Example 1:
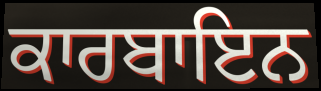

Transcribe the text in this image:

ਕਾਰਬਾਇਨ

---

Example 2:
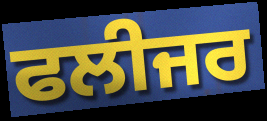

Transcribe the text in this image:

ਫਲੀਜਰ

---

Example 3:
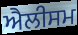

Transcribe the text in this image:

ਐਲੀਸਮ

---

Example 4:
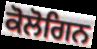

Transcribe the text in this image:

ਕੋਲੋਗਿਨ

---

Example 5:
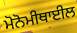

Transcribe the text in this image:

ਮੋਨੋਮੀਥਾਈਲ